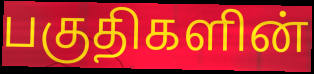
பகுதிகளின்